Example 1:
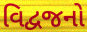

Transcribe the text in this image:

વિદ્વજનો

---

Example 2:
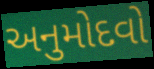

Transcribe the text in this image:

અનુમોદવો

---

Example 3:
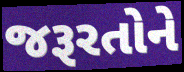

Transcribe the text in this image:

જરૂરતોને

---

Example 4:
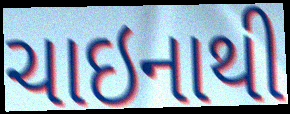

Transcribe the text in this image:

ચાઇનાથી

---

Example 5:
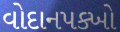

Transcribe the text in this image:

વોદાનપક્ખો